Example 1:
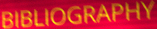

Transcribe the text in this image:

BIBLIOGRAPHY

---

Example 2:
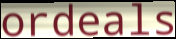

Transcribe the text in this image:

ordeals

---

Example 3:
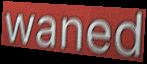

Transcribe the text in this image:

waned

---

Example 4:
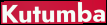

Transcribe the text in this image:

Kutumba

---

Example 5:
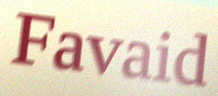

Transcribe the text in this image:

Favaid